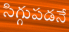
సిగ్గుపడనే